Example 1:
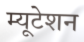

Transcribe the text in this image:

म्यूटेशन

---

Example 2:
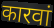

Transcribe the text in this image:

कारवां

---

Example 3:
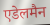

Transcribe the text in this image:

एडेलमैन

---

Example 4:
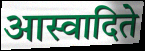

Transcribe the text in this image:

आस्वादिते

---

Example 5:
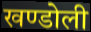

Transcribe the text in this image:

खण्डोली